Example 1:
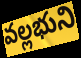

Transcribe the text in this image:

వల్లభుని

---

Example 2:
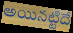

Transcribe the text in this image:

అయినట్టిదే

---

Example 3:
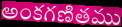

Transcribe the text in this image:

అంకగణితము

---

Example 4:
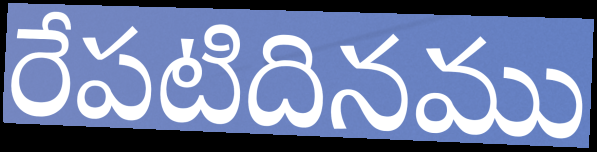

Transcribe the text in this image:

రేపటిదినము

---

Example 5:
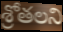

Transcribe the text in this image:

శ్రోతలని